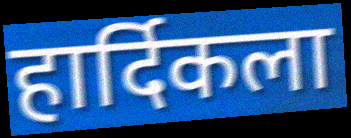
हार्दिकला